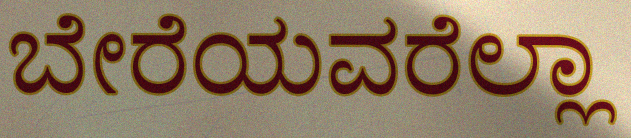
ಬೇರೆಯವರೆಲ್ಲಾ